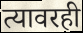
त्यावरही